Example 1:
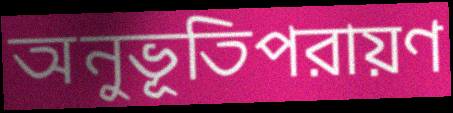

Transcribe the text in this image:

অনুভূতিপরায়ণ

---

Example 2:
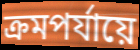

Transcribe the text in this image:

ক্রমপর্যায়ে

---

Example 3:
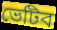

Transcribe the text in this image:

ভেটিব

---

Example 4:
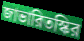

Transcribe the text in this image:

জাভারিতস্কির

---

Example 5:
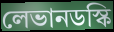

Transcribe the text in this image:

লেভানডস্কি